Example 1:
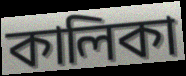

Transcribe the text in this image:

কালিকা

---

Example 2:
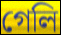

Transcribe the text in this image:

গেলি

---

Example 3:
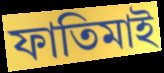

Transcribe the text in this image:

ফাতিমাই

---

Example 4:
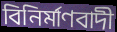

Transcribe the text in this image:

বিনিৰ্মাণবাদী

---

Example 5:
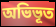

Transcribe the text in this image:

অভিভূত